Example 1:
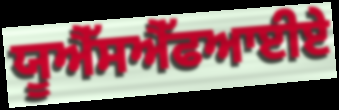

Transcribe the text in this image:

ਯੂਐੱਸਐੱਫਆਈਏ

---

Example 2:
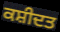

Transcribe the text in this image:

ਕਸ਼ੀਦਤ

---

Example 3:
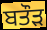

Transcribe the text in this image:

ਬਤੌੜ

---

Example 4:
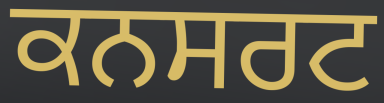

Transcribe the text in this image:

ਕਨਸਰਟ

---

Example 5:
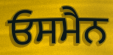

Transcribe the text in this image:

ਓਸਮੈਨ